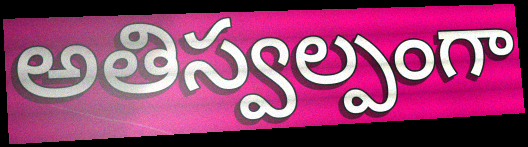
అతిస్వల్పంగా